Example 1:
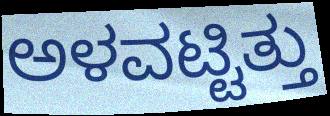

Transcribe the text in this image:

ಅಳವಟ್ಟಿತ್ತು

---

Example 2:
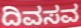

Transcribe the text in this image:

ದಿವಸವ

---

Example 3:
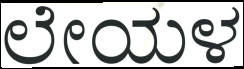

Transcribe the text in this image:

ಲೇಯಳ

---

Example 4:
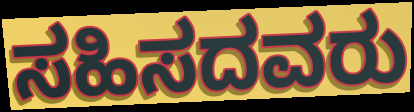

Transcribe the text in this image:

ಸಹಿಸದವರು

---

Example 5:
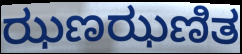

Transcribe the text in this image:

ಝಣಝಣಿತ